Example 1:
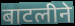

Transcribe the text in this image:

बाटलीने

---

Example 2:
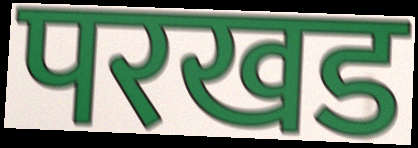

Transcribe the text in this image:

परखड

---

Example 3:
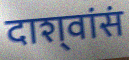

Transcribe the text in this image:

दाश्वांसं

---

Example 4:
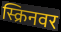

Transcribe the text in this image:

स्क्रिनवर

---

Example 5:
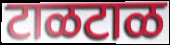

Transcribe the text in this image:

टाळटाळ